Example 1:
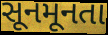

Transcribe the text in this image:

સૂનમૂનતા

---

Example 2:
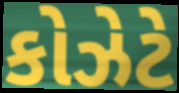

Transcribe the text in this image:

કોઝેટે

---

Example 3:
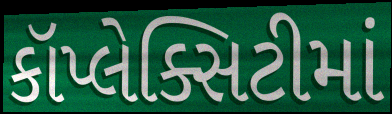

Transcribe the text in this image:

કૉપ્લેક્સિટીમાં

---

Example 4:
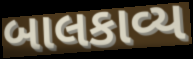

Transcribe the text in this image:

બાલકાવ્ય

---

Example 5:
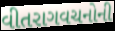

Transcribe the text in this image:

વીતરાગવચનોની